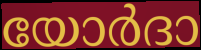
യോർദാ